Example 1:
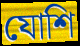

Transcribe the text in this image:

যোশি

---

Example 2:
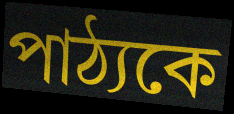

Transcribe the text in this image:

পাঠ্যকে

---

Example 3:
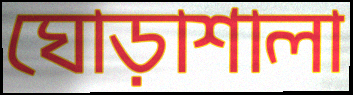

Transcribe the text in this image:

ঘোড়াশালা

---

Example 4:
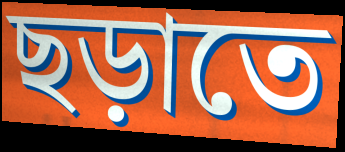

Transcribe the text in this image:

ছড়াতে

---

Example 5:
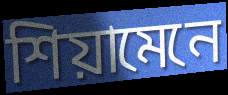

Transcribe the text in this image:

শিয়ামেনে